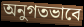
অনুগতভাবে